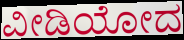
ವೀಡಿಯೋದ